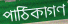
পাঠিকাগণ